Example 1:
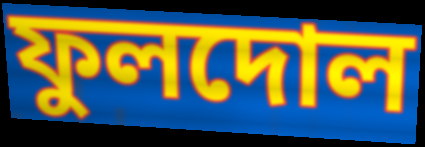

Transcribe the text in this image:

ফুলদোল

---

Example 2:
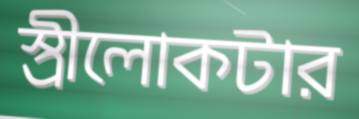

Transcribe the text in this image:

স্ত্রীলোকটার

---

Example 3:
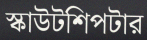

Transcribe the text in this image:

স্কাউটশিপটার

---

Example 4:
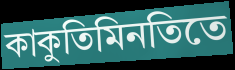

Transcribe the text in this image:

কাকুতিমিনতিতে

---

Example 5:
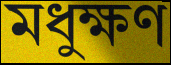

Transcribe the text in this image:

মধুক্ষণ